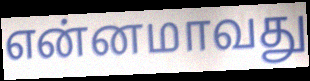
என்னமாவது